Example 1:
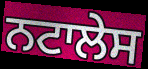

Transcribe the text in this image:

ਨਟਾਲੇਸ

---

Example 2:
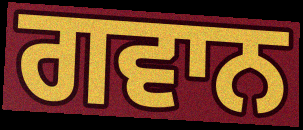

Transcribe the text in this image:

ਗਵਾਨ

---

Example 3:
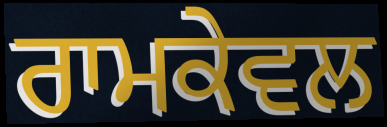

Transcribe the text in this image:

ਰਾਮਕੇਵਲ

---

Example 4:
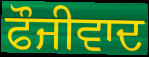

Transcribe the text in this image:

ਫੌਜੀਵਾਦ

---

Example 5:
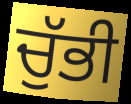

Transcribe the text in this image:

ਚੁੱਭੀ